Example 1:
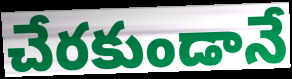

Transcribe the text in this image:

చేరకుండానే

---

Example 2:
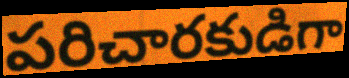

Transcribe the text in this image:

పరిచారకుడిగా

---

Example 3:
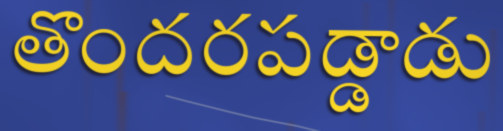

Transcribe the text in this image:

తొందరపడ్డాడు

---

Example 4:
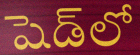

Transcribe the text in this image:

షెడ్‌లో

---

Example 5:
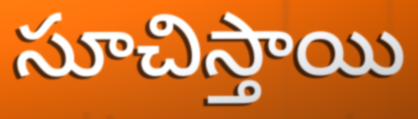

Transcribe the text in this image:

సూచిస్తాయి